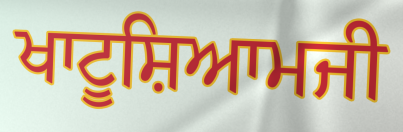
ਖਾਟੂਸ਼ਿਆਮਜੀ